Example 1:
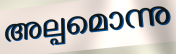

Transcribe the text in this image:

അല്പമൊന്നു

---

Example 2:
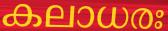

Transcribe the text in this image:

കലാധരഃ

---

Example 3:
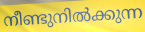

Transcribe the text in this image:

നീണ്ടുനിൽക്കുന്ന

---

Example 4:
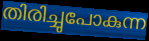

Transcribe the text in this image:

തിരിച്ചുപോകുന്ന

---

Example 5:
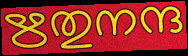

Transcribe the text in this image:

ഋതുനന്ദ